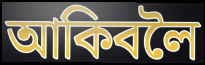
আকিবলৈ